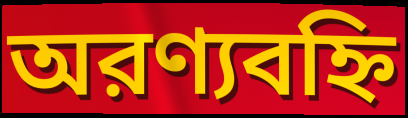
অরণ্যবহ্নি